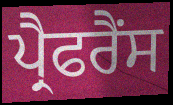
ਪ੍ਰੈਫਰੈਂਸ